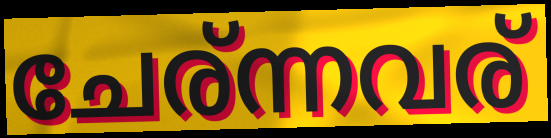
ചേര്ന്നവര്